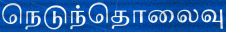
நெடுந்தொலைவு